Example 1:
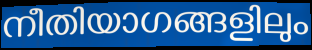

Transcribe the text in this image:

നീതിയാഗങ്ങളിലും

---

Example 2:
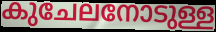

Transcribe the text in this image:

കുചേലനോടുള്ള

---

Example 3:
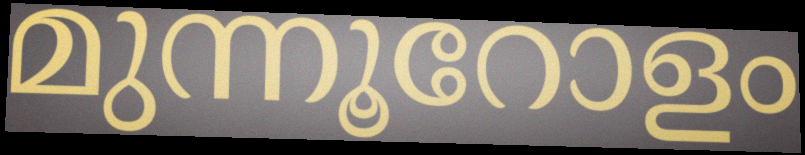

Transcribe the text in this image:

മുന്നൂറോളം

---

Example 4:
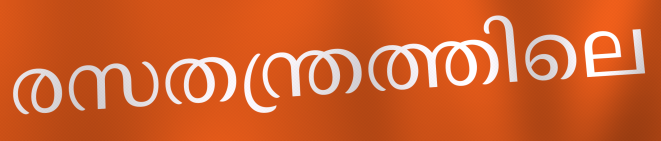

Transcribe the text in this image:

രസതന്ത്രത്തിലെ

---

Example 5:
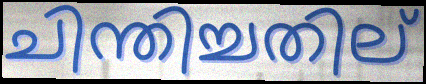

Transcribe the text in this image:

ചിന്തിച്ചതില്